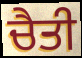
ਚੈਤੀ